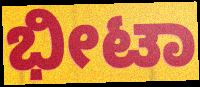
ಭೀಟಾ